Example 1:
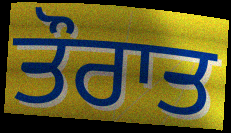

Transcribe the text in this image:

ਤੌਰਾਤ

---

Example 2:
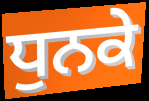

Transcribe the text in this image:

ਧੁਨਕੇ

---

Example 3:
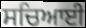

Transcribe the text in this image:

ਸਚਿਆਈ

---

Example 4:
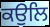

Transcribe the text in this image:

ਕਉਲਿ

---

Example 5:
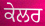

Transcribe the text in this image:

ਕੇਲਰ